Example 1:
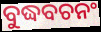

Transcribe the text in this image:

ବୁଦ୍ଧବଚନଂ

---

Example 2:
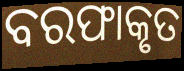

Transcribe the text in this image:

ବରଫାକୃତ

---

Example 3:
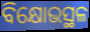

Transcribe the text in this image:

ବିକ୍ଷୋଭସ୍ଥଳ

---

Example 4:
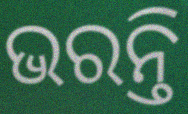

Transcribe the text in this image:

ଭରନ୍ତି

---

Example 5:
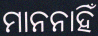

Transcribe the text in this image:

ମାନନାହିଁ